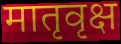
मातृवृक्ष